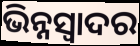
ଭିନ୍ନସ୍ବାଦର